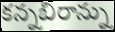
కన్నబిరాన్ను